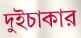
দুইচাকার